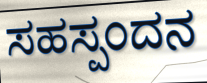
ಸಹಸ್ಪಂದನ